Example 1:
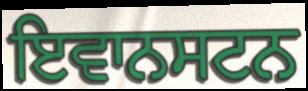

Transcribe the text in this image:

ਇਵਾਨਸਟਨ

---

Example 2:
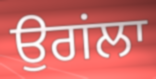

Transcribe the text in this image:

ਉਗਂਲਾ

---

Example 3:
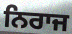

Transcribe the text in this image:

ਨਿਰਾਜ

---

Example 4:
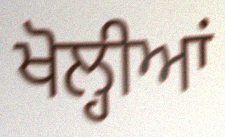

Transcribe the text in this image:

ਖੋਲ੍ਹੀਆਂ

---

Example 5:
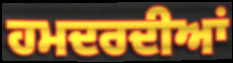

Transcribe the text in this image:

ਹਮਦਰਦੀਆਂ